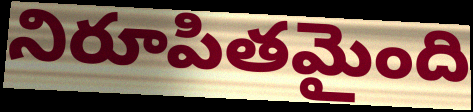
నిరూపితమైంది